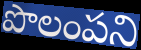
పొలంపని